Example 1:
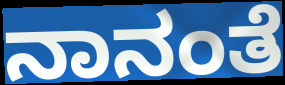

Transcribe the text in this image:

ನಾನಂತೆ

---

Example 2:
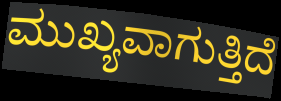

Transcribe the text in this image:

ಮುಖ್ಯವಾಗುತ್ತಿದೆ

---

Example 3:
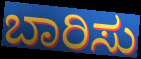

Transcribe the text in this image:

ಬಾರಿಸು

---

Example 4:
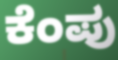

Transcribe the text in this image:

ಕೆಂಪು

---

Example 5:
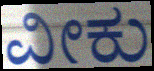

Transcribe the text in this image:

ವೀಕು